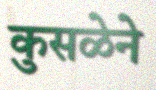
कुसळेने